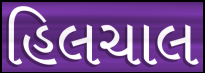
હિલચાલ